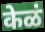
केळं